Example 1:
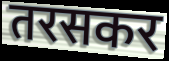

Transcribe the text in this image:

तरसकर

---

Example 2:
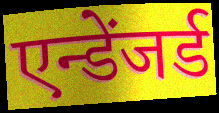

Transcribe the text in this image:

एन्डेंजर्ड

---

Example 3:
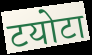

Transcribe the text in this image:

टयोटा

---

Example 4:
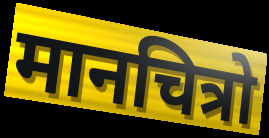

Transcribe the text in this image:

मानचित्रो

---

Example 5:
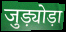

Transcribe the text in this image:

जुड़्योड़ा